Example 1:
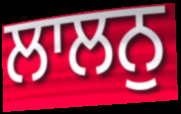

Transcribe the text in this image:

ਲਾਲਨੁ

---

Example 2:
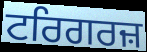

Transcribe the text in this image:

ਟਰਿਗਰਜ਼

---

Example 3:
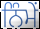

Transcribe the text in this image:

ਨਿੰਮੇਂ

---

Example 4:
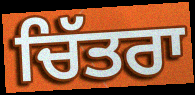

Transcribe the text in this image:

ਚਿੱਤਰਾ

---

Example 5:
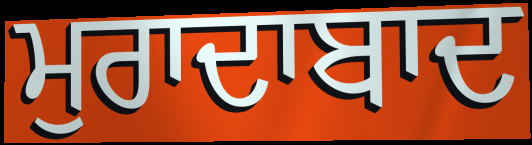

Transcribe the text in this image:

ਮੁਰਾਦਾਬਾਦ